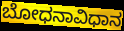
ಬೋಧನಾವಿಧಾನ